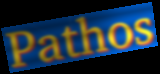
Pathos